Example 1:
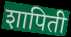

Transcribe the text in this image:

शापिती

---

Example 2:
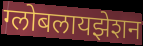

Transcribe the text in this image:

ग्लोबलायझेशन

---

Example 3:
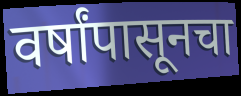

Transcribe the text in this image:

वर्षांपासूनचा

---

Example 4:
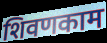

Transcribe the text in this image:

शिवणकाम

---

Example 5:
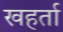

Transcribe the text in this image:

खहर्ता